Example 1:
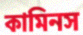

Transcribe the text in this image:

কামিনস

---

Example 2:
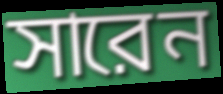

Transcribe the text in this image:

সারেন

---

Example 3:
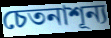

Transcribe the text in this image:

চেতনাশূন্য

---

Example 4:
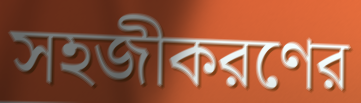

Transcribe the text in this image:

সহজীকরণের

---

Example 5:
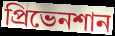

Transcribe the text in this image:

প্রিভেনশান